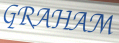
GRAHAM